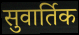
सुवार्तिक